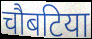
चौबटिया